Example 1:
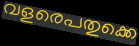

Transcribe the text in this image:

വളരെപതുക്കെ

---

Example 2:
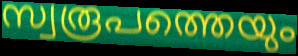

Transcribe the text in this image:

സ്വരൂപത്തെയും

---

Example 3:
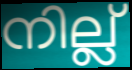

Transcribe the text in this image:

നില്ല്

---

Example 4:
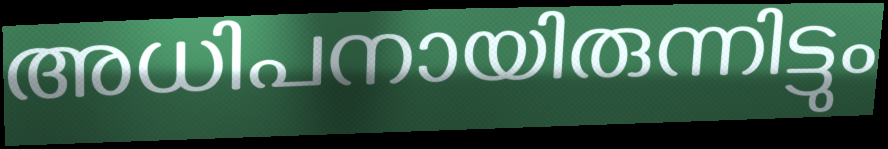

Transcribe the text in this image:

അധിപനായിരുന്നിട്ടും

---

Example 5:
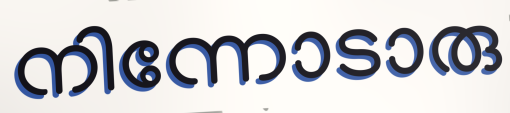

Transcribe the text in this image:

നിന്നോടാരു